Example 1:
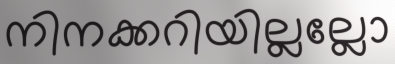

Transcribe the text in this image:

നിനക്കറിയില്ലല്ലോ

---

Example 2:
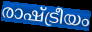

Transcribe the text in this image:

രാഷ്ട്രീയം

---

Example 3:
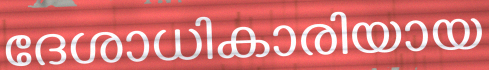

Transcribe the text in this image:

ദേശാധികാരിയായ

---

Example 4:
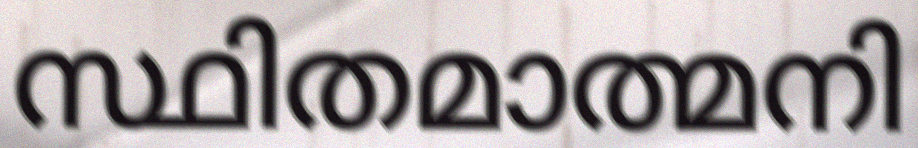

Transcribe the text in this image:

സ്ഥിതമാത്മനി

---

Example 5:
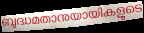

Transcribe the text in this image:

ബുദ്ധമതാനുയായികളുടെ